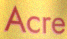
Acre